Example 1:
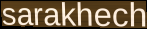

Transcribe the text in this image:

sarakhech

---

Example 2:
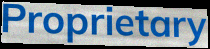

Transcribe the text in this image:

Proprietary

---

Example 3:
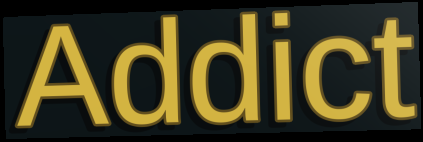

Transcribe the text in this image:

Addict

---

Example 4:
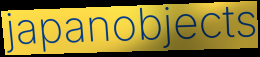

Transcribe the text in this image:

japanobjects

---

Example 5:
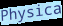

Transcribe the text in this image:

Physica